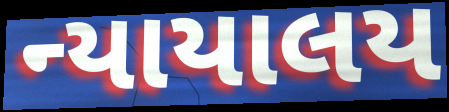
ન્યાયાલય